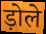
ड़ोले